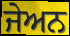
ਜੇਅਨ